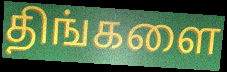
திங்களை